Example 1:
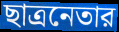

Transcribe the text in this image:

ছাত্রনেতার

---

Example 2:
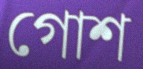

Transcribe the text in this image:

গোশ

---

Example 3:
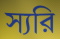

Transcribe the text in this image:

স্যরি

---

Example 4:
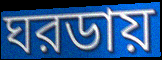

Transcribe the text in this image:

ঘরডায়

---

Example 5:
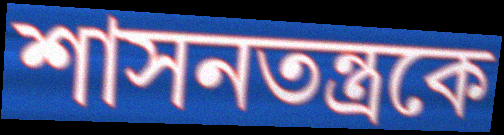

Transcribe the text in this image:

শাসনতন্ত্রকে